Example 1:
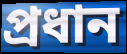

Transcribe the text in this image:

প্রধান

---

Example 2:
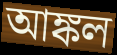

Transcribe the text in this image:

আঙ্কল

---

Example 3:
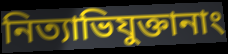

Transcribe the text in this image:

নিত্যাভিযুক্তানাং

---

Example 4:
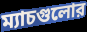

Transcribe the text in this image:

ম্যাচগুলোর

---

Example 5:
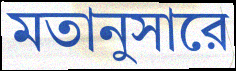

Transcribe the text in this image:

মতানুসারে